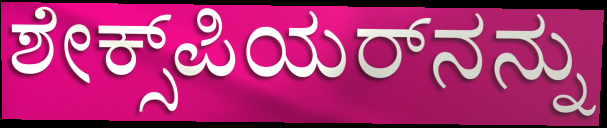
ಶೇಕ್ಸ್‌ಪಿಯರ್‌ನನ್ನು